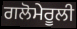
ਗਲੋਮੇਰੂਲੀ